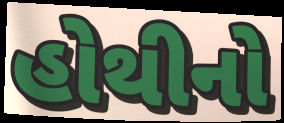
હોથીનો